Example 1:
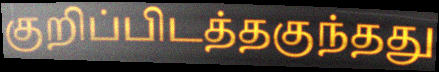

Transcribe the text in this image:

குறிப்பிடத்தகுந்தது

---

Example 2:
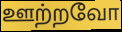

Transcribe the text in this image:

ஊற்றவோ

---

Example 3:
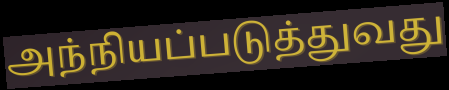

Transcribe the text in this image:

அந்நியப்படுத்துவது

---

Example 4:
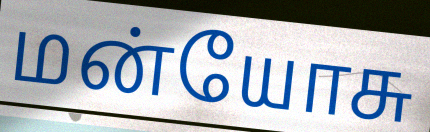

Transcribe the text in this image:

மன்யோசு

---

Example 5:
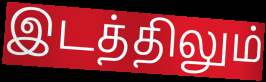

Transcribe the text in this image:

இடத்திலும்